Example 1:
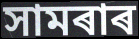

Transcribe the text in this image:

সামৰাৰ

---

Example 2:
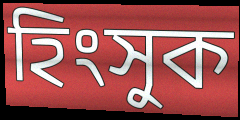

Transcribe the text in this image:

হিংসুক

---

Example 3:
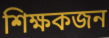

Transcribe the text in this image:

শিক্ষকজন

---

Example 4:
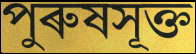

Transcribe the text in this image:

পুৰুষসূক্ত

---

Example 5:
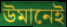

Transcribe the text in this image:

উমানেই